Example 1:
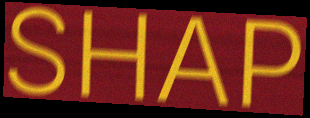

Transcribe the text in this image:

SHAP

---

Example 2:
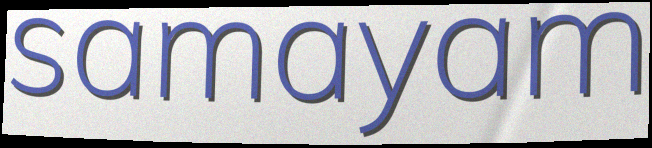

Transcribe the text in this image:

samayam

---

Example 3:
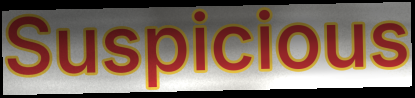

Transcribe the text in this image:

Suspicious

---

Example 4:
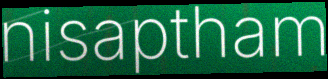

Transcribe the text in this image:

nisaptham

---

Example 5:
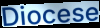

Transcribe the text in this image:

Diocese